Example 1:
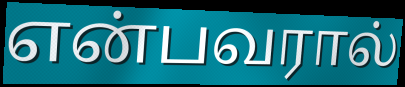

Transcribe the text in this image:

என்பவரால்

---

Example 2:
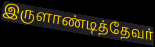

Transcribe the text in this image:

இருளாண்டித்தேவர்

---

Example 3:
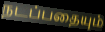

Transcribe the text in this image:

நடப்பதையும்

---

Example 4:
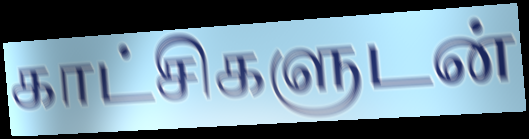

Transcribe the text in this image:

காட்சிகளுடன்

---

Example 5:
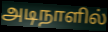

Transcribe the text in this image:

அடிநாளில்